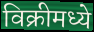
विक्रीमध्ये